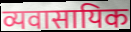
व्यवासायिक